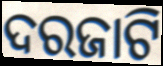
ଦରଜାଟି